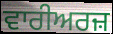
ਵਾਰੀਅਰਜ਼